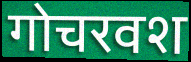
गोचरवश